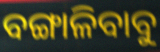
ବଙ୍ଗାଳିବାବୁ